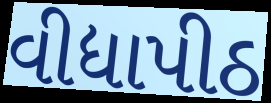
વીદ્યાપીઠ